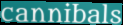
cannibals